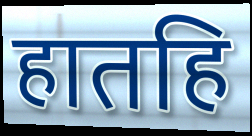
हातहि